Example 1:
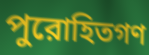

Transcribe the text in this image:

পুরোহিতগণ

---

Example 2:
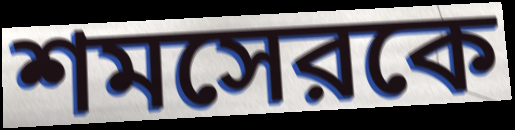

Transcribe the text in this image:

শমসেরকে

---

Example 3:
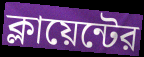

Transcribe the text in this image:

ক্লায়েন্টের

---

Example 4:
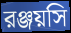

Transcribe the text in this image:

রঞ্জয়সি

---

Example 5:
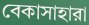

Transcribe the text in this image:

বেকাসাহারা